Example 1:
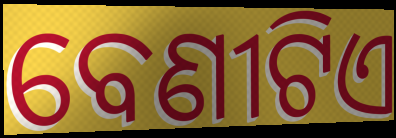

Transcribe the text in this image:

ବେଣୀଟିଏ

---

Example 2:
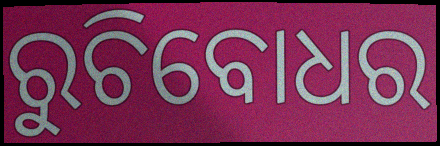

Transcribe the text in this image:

ରୁଚିବୋଧର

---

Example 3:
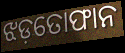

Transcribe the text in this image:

ଝଡ଼ତୋଫାନ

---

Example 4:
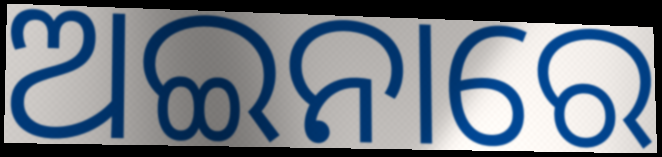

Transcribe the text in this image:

ଅଇନାରେ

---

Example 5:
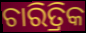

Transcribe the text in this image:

ଚାରିତ୍ରିକ